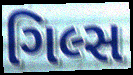
ગિલ્સ